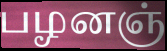
பழனஞ்